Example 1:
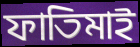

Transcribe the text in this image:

ফাতিমাই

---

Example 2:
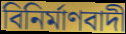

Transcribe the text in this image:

বিনিৰ্মাণবাদী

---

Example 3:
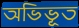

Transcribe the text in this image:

অভিভূত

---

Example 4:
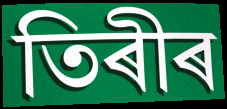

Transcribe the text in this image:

তিৰীৰ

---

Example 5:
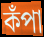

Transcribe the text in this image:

কঁপা